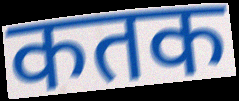
कतक